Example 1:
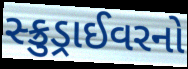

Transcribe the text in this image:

સ્ક્રુડ્રાઈવરનો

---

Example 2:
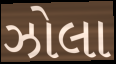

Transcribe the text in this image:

ઝોલા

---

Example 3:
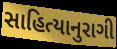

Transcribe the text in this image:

સાહિત્યાનુરાગી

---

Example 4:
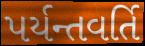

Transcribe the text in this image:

પર્યન્તવર્તિ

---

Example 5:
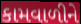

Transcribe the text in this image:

કામવાળીને